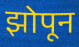
झोपून